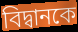
বিদ্বানকে